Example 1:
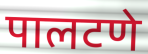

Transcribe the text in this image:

पालटणे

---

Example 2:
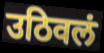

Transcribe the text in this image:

उठिवलं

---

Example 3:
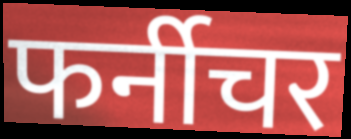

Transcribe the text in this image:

फर्नीचर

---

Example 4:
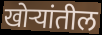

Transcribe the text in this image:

खोऱ्यांतील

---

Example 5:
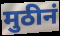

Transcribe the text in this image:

मुठीनं